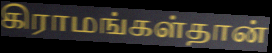
கிராமங்கள்தான்